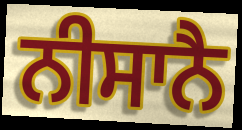
ਨੀਸਾਨੈ